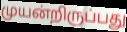
முயன்றிருப்பது